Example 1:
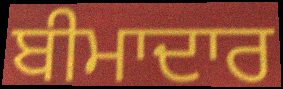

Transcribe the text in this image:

ਬੀਮਾਦਾਰ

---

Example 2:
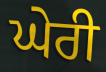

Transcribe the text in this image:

ਘੇਰੀ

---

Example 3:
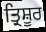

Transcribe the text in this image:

ਤ੍ਰਿਸ਼ੂਰ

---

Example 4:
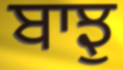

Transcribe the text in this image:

ਬਾਝੁ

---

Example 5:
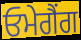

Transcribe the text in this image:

ਓਮੇਗੈਂਗ